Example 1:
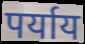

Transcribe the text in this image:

पर्याय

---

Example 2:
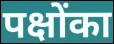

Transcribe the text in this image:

पक्षोंका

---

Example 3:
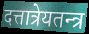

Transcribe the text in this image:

दत्तात्रेयतन्त्र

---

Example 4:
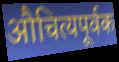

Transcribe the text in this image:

औचित्यपूर्वक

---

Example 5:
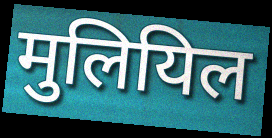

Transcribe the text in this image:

मुलियिल